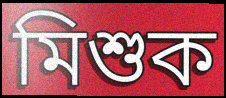
মিশুক